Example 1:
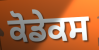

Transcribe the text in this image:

ਕੋਡੇਕਸ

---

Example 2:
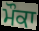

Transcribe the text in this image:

ਮੌਕਾ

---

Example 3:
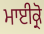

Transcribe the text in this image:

ਮਾਈਕ੍ਰੋ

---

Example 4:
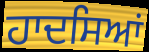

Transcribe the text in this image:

ਹਾਦਸਿਆਂ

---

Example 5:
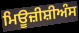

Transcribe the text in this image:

ਮਿਊਜ਼ੀਸ਼ੀਅੰਸ